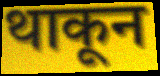
थाकून